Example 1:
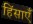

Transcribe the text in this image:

हिंसाएँ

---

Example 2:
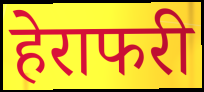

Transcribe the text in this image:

हेराफरी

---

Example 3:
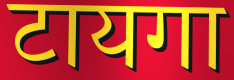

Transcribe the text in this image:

टायगा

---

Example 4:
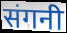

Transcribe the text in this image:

संगनी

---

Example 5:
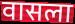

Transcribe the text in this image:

वासला